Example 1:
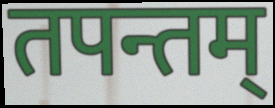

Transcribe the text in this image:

तपन्तम्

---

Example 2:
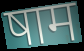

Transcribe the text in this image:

षाम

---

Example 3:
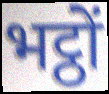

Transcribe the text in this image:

भट्ठों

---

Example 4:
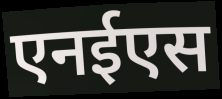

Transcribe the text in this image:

एनईएस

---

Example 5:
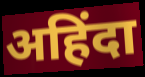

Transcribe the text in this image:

अहिंदा